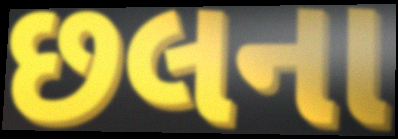
છલના